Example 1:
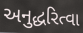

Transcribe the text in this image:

અનુદ્ધરિત્વા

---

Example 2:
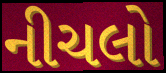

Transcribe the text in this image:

નીચલો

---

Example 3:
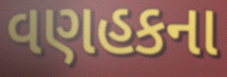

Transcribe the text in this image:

વણહકના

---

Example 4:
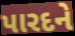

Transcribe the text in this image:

પારદને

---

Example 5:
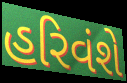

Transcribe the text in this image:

હરિવંશે